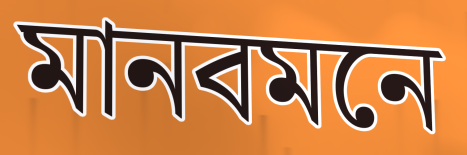
মানবমনে